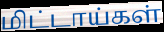
மிட்டாய்கள்